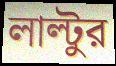
লাল্টুর